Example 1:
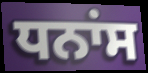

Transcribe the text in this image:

ਧਨਾਂਸ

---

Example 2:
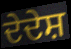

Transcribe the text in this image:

ਦੇਦੇਸ਼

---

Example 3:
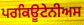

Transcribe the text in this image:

ਪਰਕਿਊਟੇਨੀਅਸ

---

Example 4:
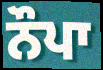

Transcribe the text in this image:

ਨੌਪਾ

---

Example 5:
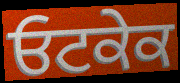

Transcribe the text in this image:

ਓਟਕੇਕ